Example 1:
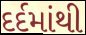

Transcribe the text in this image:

દર્દમાંથી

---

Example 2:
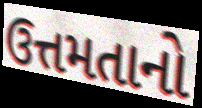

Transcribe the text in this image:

ઉત્તમતાનો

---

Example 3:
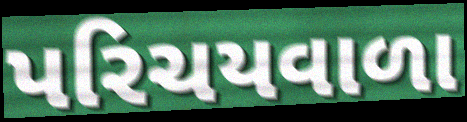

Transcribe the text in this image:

પરિચયવાળા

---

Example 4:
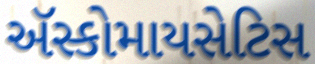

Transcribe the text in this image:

ઍસ્કોમાયસેટિસ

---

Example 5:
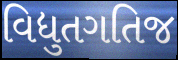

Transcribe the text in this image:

વિદ્યુતગતિજ